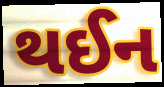
થઈન